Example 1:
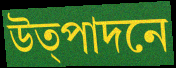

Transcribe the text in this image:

উত্পাদনে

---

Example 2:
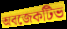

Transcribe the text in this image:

অবজেকটিভ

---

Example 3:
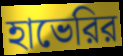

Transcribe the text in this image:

হাভেরির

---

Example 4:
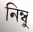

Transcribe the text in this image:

নিম্বু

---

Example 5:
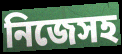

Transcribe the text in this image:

নিজেসহ